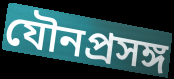
যৌনপ্রসঙ্গ